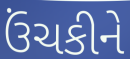
ઉંચકીને